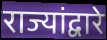
राज्यांद्वारे